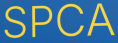
SPCA